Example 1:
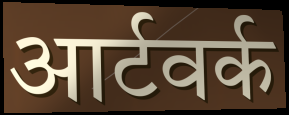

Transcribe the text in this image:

आर्टवर्क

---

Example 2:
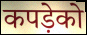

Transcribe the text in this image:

कपड़ेको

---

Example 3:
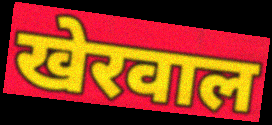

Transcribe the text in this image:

खेरवाल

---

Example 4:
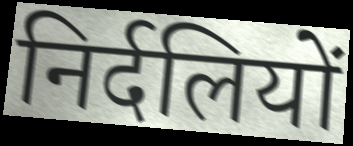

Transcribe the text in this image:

निर्दलियों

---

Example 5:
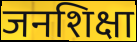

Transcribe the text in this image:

जनशिक्षा